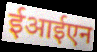
ईआईएन